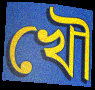
খৌ